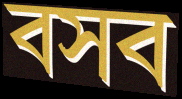
বসব